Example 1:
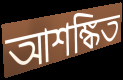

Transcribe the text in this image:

আশঙ্কিত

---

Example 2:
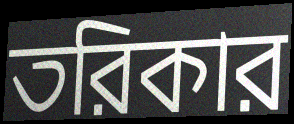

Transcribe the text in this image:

তরিকার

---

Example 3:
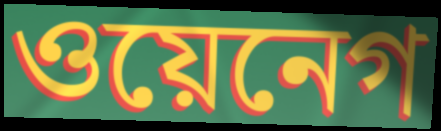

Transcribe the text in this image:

ওয়েনেগ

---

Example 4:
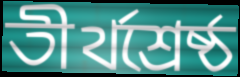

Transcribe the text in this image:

তীর্থশ্রেষ্ঠ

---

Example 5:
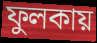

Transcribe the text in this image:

ফুলকায়